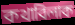
কথাবিলাক